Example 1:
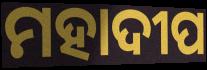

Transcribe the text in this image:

ମହାଦୀପ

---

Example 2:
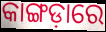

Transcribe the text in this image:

କାଙ୍ଗଡ଼ାରେ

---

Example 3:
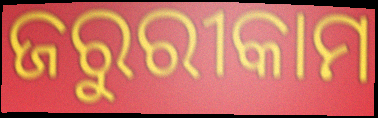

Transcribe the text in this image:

ଜରୁରୀକାମ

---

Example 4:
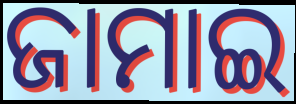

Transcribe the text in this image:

ଜାମାଇ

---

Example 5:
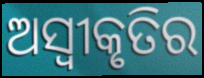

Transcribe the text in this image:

ଅସ୍ୱୀକୃତିର